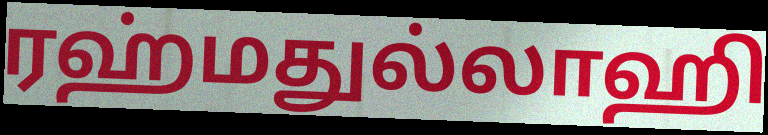
ரஹ்மதுல்லாஹி